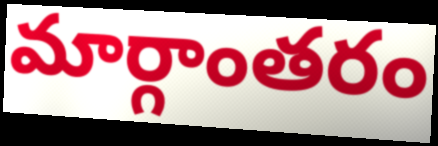
మార్గాంతరం